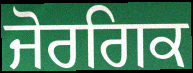
ਜੋਰਗਿਕ